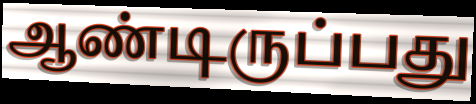
ஆண்டிருப்பது